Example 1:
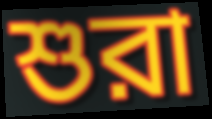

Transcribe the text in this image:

শুরা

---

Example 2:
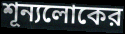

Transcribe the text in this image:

শূন্যলোকের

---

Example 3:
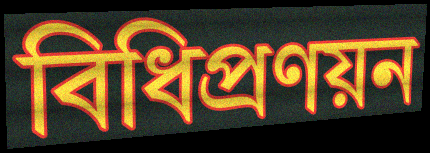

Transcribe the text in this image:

বিধিপ্রণয়ন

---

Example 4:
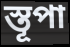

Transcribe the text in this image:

স্তূপা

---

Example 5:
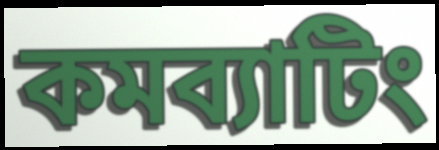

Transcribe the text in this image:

কমব্যাটিং